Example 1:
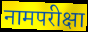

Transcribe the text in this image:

नामपरीक्षा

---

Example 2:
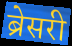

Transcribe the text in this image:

ब्रेसरी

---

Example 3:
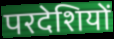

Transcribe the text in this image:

परदेशियों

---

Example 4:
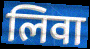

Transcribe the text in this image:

लिवा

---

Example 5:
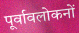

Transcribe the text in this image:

पूर्वावलोकनों